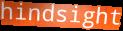
hindsight